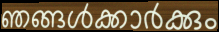
ഞങ്ങൾക്കാർക്കും